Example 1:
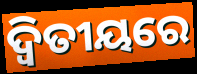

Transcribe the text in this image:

ଦ୍ୱିତୀୟରେ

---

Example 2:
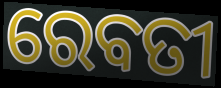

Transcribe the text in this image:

ରେବତୀ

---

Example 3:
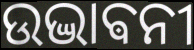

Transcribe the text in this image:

ଉଦ୍ଭାଵନୀ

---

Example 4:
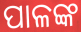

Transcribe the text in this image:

ପାଳଙ୍କ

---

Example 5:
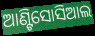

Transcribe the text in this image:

ଆଣ୍ଟିସୋସିଆଲ